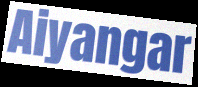
Aiyangar